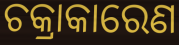
ଚକ୍ରାକାରେଣ